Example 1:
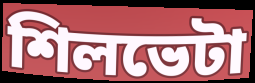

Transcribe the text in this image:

শিলভেটা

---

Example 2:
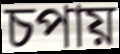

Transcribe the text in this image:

চপায়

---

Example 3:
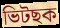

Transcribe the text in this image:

ভিটছক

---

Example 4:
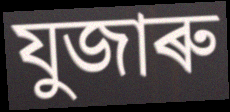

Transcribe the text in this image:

যুজাৰু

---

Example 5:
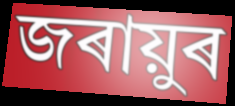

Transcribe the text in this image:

জৰায়ুৰ